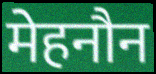
मेहनौन